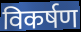
विकर्षण